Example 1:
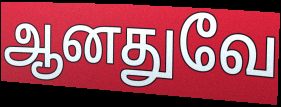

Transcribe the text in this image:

ஆனதுவே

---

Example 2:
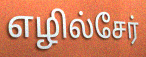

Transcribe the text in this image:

எழில்சேர்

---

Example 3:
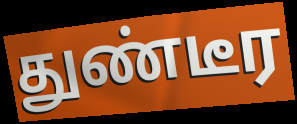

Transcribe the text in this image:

துண்டீர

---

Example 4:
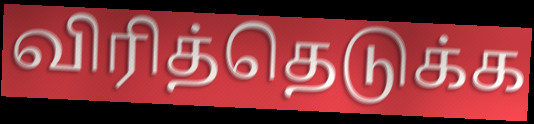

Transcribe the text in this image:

விரித்தெடுக்க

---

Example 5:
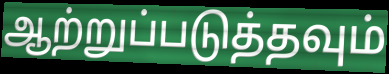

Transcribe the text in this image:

ஆற்றுப்படுத்தவும்